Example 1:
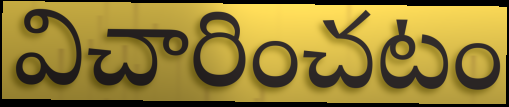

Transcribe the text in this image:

విచారించటం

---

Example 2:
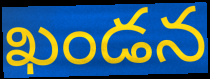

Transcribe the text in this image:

ఖండన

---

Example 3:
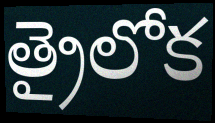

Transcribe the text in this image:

త్రైలోక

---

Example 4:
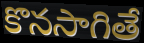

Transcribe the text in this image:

కొనసాగితే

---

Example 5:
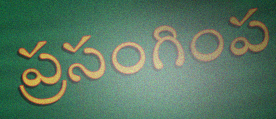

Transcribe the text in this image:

ప్రసంగింప